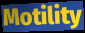
Motility